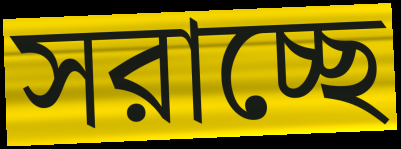
সরাচ্ছে